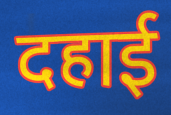
दहाई